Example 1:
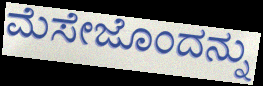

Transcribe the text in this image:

ಮೆಸೇಜೊಂದನ್ನು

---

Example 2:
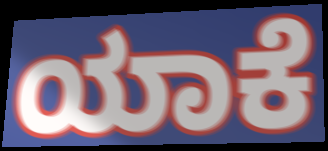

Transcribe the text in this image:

ಯಾಕೆ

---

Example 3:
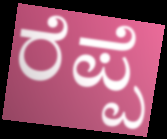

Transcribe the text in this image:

ರೆಪ್ಪೆ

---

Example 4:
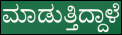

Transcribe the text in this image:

ಮಾಡುತ್ತಿದ್ದಾಳೆ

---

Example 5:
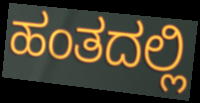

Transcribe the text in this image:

ಹಂತದಲ್ಲಿ